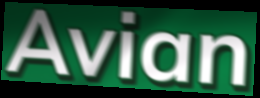
Avian